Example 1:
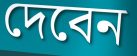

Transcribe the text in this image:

দেবেন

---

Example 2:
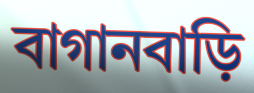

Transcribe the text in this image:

বাগানবাড়ি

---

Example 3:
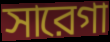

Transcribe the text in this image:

সারেগা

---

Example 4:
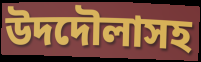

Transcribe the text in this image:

উদদৌলাসহ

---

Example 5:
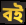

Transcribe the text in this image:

বই